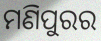
ମଣିପୁରର